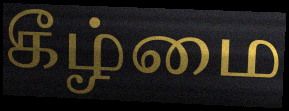
கீழ்மை